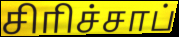
சிரிச்சாப்